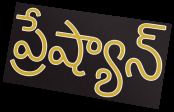
ప్రేష్యాన్